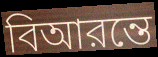
বিআরন্তে